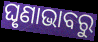
ଘୃଣାଭାବରୁ